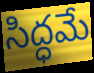
సిద్ధమే